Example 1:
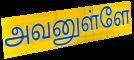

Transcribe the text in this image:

அவனுள்ளே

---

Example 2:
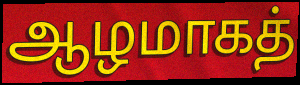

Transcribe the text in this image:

ஆழமாகத்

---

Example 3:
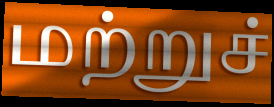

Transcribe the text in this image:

மற்றுச்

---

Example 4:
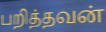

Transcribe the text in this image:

பறித்தவன்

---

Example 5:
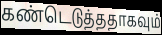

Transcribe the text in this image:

கண்டெடுத்ததாகவும்